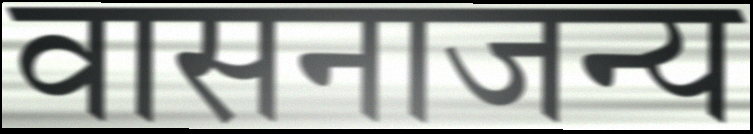
वासनाजन्य